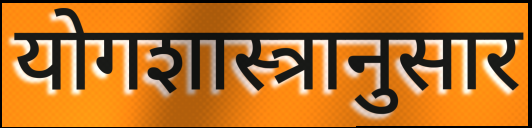
योगशास्त्रानुसार